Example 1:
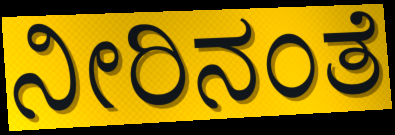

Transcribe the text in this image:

ನೀರಿನಂತೆ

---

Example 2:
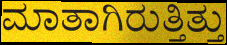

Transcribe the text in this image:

ಮಾತಾಗಿರುತ್ತಿತ್ತು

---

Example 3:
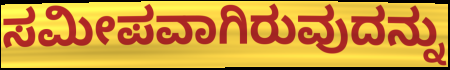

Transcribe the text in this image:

ಸಮೀಪವಾಗಿರುವುದನ್ನು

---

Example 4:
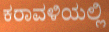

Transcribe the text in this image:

ಕರಾವಳಿಯಲ್ಲಿ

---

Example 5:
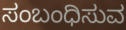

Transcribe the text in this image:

ಸಂಬಂಧಿಸುವ